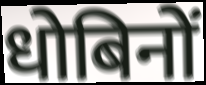
धोबिनों